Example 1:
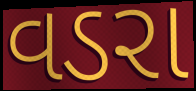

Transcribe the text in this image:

વડરા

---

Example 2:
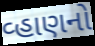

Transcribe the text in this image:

વ્હાણનો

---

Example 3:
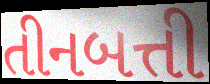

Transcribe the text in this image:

તીનબત્તી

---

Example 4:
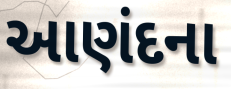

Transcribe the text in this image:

આણંદના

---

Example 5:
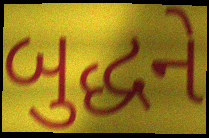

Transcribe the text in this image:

બુદ્ધને